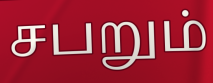
சபறும்